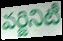
వర్జినిటీ